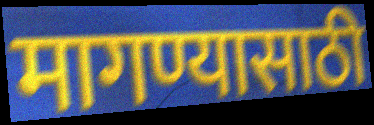
मागण्यासाठी